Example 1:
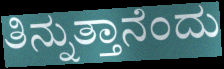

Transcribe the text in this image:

ತಿನ್ನುತ್ತಾನೆಂದು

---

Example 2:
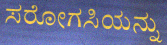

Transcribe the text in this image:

ಸರೋಗಸಿಯನ್ನು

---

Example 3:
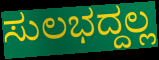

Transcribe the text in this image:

ಸುಲಭದ್ದಲ್ಲ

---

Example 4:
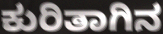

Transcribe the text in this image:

ಕುರಿತಾಗಿನ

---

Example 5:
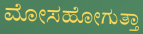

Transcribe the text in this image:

ಮೋಸಹೋಗುತ್ತಾ